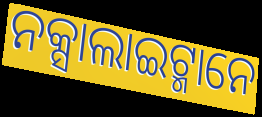
ନକ୍ସାଲାଇଟ୍ମାନେ